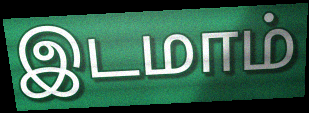
இடமாம்